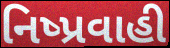
નિષ્પ્રવાહી